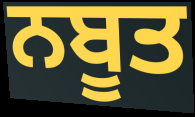
ਨਬੂਤ